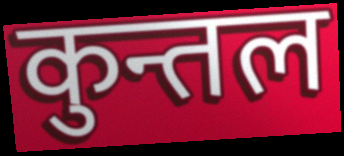
कुन्तल